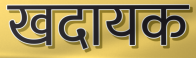
खदायक